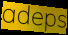
adeps